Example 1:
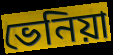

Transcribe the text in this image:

ভেনিয়া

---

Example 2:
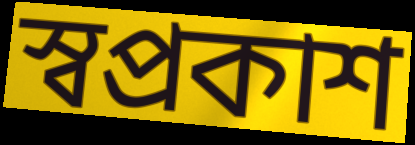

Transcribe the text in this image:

স্বপ্ৰকাশ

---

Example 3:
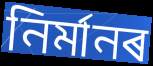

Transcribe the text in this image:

নিৰ্মানৰ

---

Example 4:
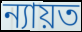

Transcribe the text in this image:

ন্যায়ত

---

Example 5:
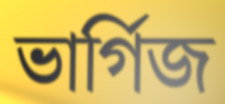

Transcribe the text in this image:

ভাৰ্গিজ